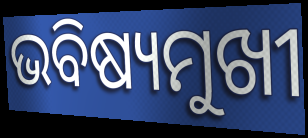
ଭବିଷ୍ୟମୁଖୀ